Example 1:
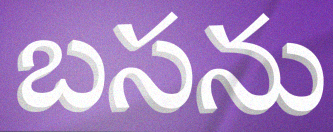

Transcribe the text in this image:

బసను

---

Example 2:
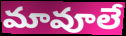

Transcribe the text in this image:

మావూలే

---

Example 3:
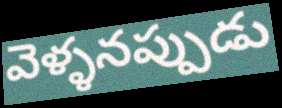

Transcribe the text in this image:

వెళ్ళనప్పుడు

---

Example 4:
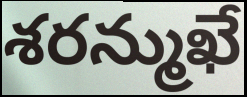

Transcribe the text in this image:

శరన్ముఖే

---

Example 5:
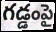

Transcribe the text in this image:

గడ్డంపై